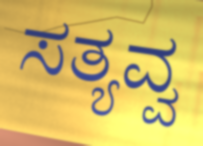
ಸತ್ಯವ್ವ